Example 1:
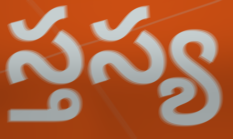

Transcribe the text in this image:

స్తస్య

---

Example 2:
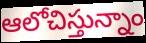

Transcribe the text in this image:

ఆలోచిస్తున్నాం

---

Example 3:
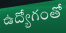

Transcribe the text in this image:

ఉద్యోగంతో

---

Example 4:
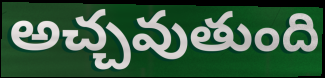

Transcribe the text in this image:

అచ్చవుతుంది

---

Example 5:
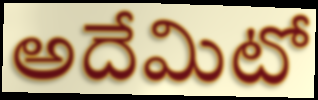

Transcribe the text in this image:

అదేమిటో